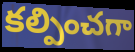
కల్పించగా